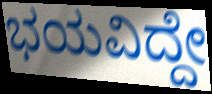
ಭಯವಿದ್ದೇ